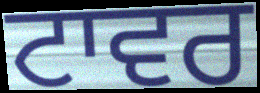
ਟਾਵਰ